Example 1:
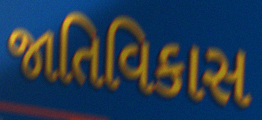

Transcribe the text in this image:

જાતિવિકાસ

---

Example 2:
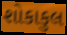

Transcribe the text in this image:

શોકાકુલ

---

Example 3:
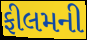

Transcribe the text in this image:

ફીલમની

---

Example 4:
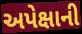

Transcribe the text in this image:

અપેક્ષાની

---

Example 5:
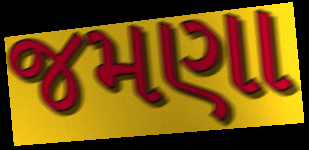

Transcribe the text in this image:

જમણા